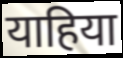
याहिया